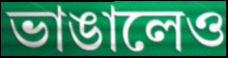
ভাঙালেও